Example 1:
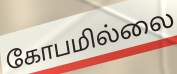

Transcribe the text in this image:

கோபமில்லை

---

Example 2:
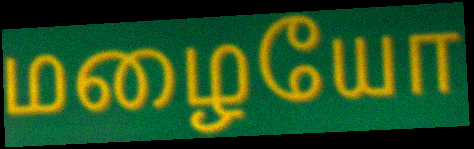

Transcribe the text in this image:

மழையோ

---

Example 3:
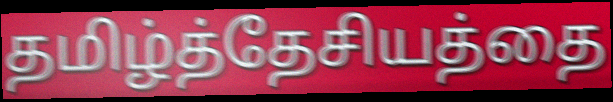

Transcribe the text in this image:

தமிழ்த்தேசியத்தை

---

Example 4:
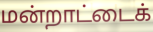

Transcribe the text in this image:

மன்றாட்டைக்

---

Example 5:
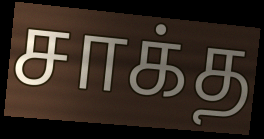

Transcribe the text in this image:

சாக்த